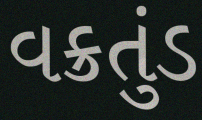
વક્રતુંડ